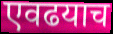
एवढयाच